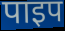
पाइप